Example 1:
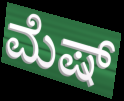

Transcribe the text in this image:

ಮೆಷ್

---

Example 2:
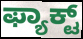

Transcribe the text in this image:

ಫ್ಯಾಕ್ಟ್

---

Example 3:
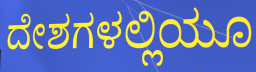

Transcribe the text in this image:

ದೇಶಗಳಲ್ಲಿಯೂ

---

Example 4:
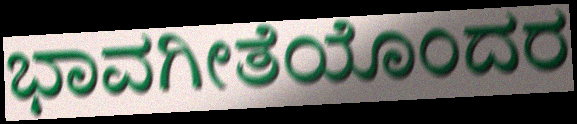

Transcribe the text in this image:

ಭಾವಗೀತೆಯೊಂದರ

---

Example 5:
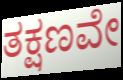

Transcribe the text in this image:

ತಕ್ಷಣವೇ